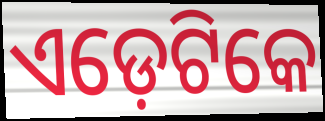
ଏଡ଼େଟିକେ